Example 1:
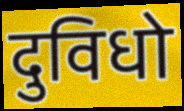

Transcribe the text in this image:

दुविधो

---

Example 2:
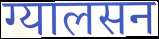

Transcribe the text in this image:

ग्यालसन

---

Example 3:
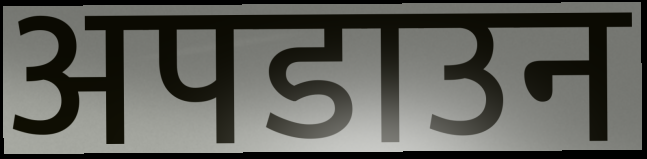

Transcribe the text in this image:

अपडाउन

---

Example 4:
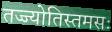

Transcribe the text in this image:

तज्ज्योतिस्तमसः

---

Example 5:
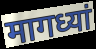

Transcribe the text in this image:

मागध्यां